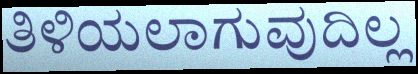
ತಿಳಿಯಲಾಗುವುದಿಲ್ಲ